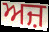
ਅਜ਼